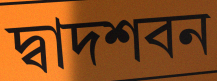
দ্বাদশবন